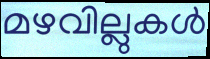
മഴവില്ലുകൾ